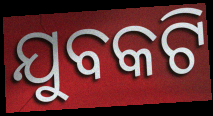
ଯୁବକଟି